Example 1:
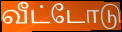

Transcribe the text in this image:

வீட்டோடு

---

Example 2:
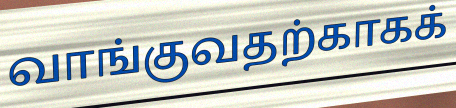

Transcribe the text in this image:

வாங்குவதற்காகக்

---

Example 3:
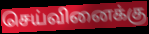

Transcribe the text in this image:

செய்வினைக்கு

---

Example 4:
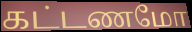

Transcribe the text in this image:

கட்டணமோ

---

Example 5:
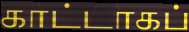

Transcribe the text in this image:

காட்டாகப்